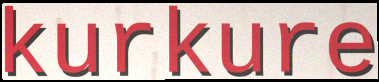
kurkure